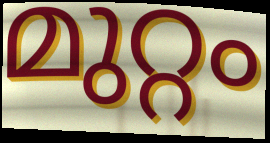
മുറ്റം